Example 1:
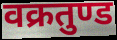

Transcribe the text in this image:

वक्रतुण्ड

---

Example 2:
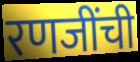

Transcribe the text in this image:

रणजींची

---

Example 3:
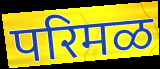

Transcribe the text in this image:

परिमळ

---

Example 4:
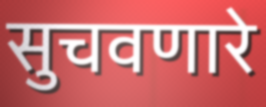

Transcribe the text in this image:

सुचवणारे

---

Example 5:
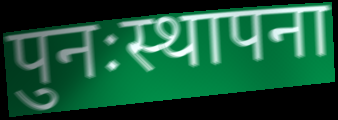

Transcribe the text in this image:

पुनःस्थापना